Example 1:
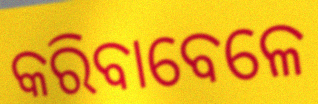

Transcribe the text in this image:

କରିବାବେଳେ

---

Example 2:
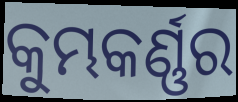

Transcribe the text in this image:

କୁମ୍ଭକର୍ଣ୍ଣର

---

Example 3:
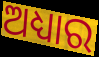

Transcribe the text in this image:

ଅଧ୍ୟାର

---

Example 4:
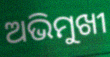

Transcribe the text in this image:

ଅଭିମୁଖୀ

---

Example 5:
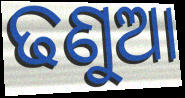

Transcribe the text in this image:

ଢଣୁଆ